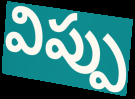
విప్పు